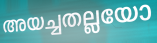
അയച്ചതല്ലയോ